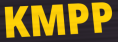
KMPP